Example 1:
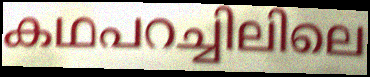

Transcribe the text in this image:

കഥപറച്ചിലിലെ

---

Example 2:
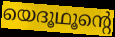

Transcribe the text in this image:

യെദൂഥൂന്റെ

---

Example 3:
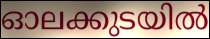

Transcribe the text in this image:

ഓലക്കുടയിൽ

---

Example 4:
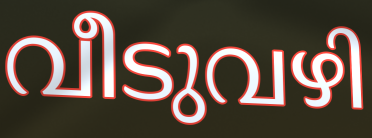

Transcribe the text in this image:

വീടുവഴി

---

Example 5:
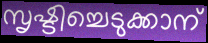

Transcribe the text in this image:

സൃഷ്ടിച്ചെടുക്കാന്